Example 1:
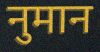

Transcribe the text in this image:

नुमान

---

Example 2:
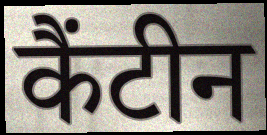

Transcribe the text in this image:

कैंटीन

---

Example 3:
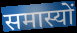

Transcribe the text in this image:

समास्यों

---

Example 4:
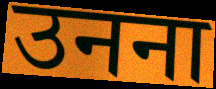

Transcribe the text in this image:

उनना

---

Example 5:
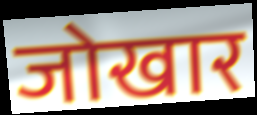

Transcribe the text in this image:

जोखार